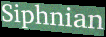
Siphnian